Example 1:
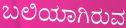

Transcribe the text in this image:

ಬಲಿಯಾಗಿರುವ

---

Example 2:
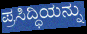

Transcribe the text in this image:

ಪ್ರಸಿದ್ಧಿಯನ್ನು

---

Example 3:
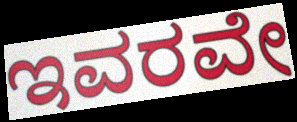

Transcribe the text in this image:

ಇವರವೇ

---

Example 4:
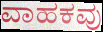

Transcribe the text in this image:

ವಾಹಕವು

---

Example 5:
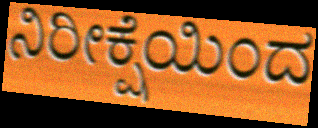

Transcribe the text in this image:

ನಿರೀಕ್ಷೆಯಿಂದ